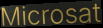
Microsat